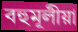
বহুমূলীয়া